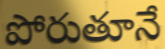
పోరుతూనే